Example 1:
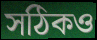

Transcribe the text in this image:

সঠিকও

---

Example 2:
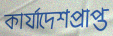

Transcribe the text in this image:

কার্যাদেশপ্রাপ্ত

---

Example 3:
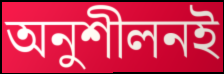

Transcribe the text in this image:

অনুশীলনই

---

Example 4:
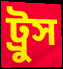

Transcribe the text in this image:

ট্রুস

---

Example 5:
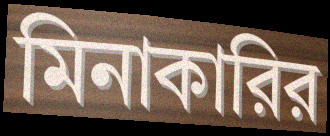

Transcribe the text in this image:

মিনাকারির